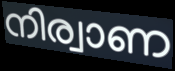
നിര്വാണ